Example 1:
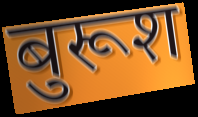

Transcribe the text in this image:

बुरूश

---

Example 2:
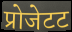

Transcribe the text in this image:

प्रोजेटट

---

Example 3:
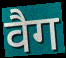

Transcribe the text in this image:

वैग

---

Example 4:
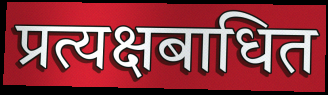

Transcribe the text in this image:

प्रत्यक्षबाधित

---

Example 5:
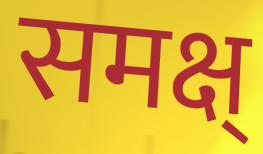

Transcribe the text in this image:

समक्ष्